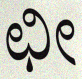
ಛೀ